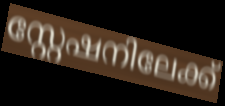
സ്റ്റേഷനിലേക്ക്